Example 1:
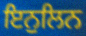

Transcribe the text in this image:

ਇਨੁਲਿਨ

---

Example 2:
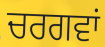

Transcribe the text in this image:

ਚਰਗਵਾਂ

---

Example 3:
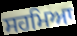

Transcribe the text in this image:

ਸਹਮਿਆ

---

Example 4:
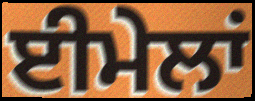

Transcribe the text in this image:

ਈਮੇਲਾਂ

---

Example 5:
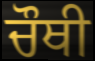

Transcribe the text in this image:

ਚੌਥੀ